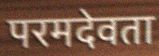
परमदेवता